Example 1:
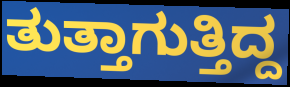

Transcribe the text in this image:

ತುತ್ತಾಗುತ್ತಿದ್ದ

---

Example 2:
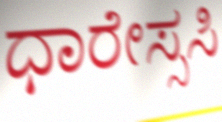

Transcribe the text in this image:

ಧಾರೇಸ್ಸಸಿ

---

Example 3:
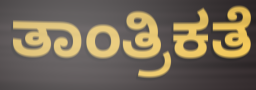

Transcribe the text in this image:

ತಾಂತ್ರಿಕತೆ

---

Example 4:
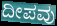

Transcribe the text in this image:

ದೀಪವು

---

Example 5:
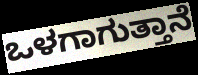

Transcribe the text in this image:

ಒಳಗಾಗುತ್ತಾನೆ